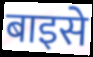
बाइसे